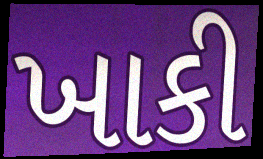
ખાકી